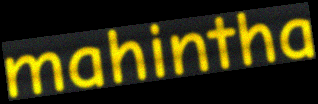
mahintha